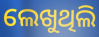
ଲେଖୁଥିଲି